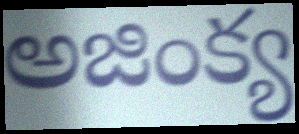
అజింక్య